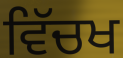
ਵਿੱਚਖ